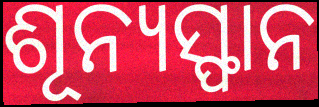
ଶୂନ୍ୟସ୍ଫାନ